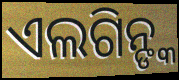
ଏଲଗିନ୍ଙ୍କ